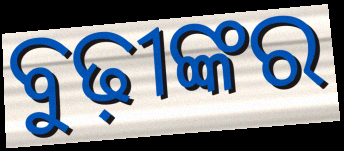
ବୁଢ଼ୀଙ୍କର